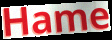
Hame